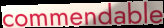
commendable